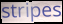
stripes